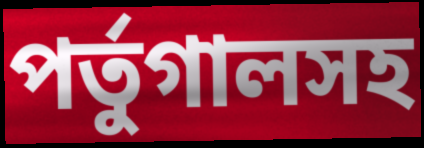
পর্তুগালসহ